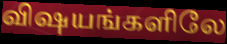
விஷயங்களிலே